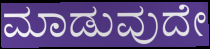
ಮಾಡುವುದೇ